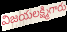
విజయలక్ష్మిగారు